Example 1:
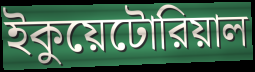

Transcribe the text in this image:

ইকুয়েটোরিয়াল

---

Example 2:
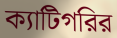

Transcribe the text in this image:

ক্যাটিগরির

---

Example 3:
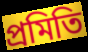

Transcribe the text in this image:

প্রমিতি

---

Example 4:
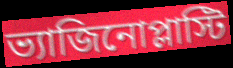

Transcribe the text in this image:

ভ্যাজিনোপ্লাস্টি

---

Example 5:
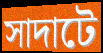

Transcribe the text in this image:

সাদাটে